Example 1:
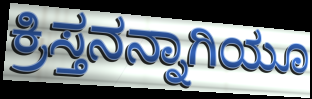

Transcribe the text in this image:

ಕ್ರಿಸ್ತನನ್ನಾಗಿಯೂ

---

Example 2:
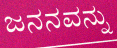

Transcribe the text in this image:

ಜನನವನ್ನು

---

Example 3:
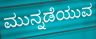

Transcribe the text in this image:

ಮುನ್ನಡೆಯುವ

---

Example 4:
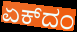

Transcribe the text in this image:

ಏಕ್‌ದಂ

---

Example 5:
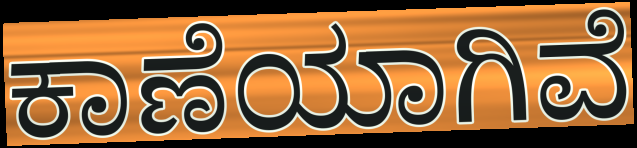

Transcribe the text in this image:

ಕಾಣೆಯಾಗಿವೆ